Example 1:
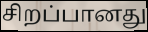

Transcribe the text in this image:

சிறப்பானது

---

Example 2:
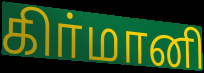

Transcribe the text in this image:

கிர்மானி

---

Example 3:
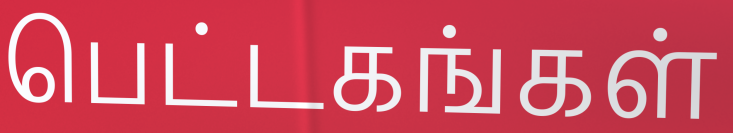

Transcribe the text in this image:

பெட்டகங்கள்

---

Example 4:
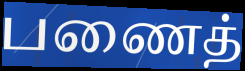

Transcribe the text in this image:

பணைத்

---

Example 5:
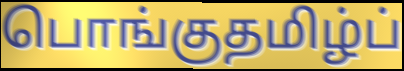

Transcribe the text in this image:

பொங்குதமிழ்ப்